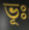
ভূঃ